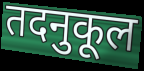
तदनुकूल